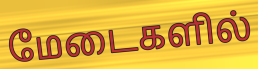
மேடைகளில்